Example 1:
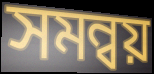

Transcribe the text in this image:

সমন্বয়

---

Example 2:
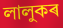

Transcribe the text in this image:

লালুকৰ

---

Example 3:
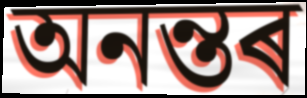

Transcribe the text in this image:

অনন্তৰ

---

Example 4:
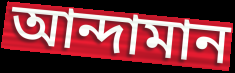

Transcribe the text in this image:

আন্দামান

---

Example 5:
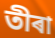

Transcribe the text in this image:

তীৰা